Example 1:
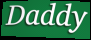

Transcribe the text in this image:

Daddy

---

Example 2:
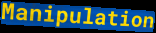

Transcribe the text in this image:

Manipulation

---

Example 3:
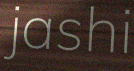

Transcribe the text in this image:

jashi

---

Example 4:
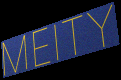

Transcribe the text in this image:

MEITY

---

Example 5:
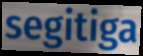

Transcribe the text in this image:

segitiga